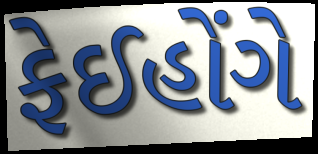
ફેઈહોંગે